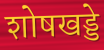
शोषखड्डे